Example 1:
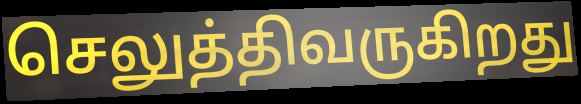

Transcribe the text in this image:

செலுத்திவருகிறது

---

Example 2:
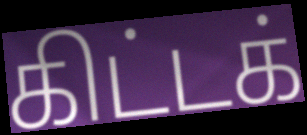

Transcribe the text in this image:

கிட்டக்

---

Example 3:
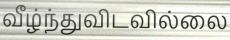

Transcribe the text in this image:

வீழ்ந்துவிடவில்லை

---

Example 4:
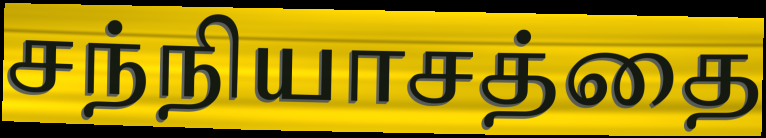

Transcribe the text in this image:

சந்நியாசத்தை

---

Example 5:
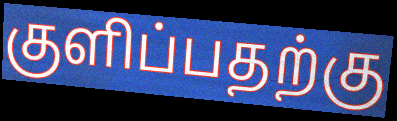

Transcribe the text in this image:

குளிப்பதற்கு